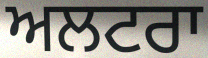
ਅਲਟਰਾ